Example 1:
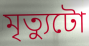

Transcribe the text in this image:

মৃত্যুটো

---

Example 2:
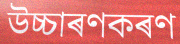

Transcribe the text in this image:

উচ্চাৰণকৰণ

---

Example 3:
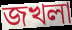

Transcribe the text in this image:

জখলা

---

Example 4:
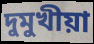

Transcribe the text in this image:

দুমুখীয়া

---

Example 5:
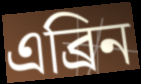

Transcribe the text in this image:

এব্ৰিন